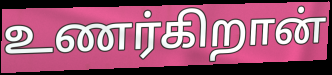
உணர்கிறான்